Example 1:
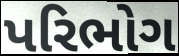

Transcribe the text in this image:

પરિભોગ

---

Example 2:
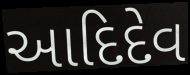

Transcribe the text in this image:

આદિદેવ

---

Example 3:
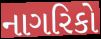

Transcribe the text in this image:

નાગરિકો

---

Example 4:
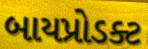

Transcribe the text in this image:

બાયપ્રોડક્ટ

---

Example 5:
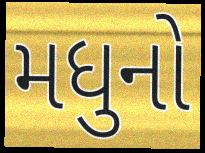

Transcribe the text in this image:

મધુનો